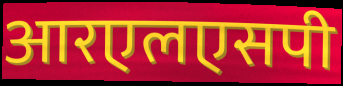
आरएलएसपी